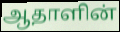
ஆதாளின்